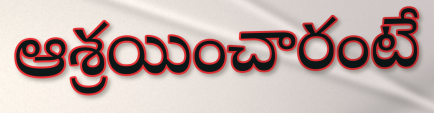
ఆశ్రయించారంటే